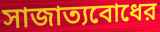
সাজাত্যবোধের